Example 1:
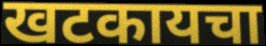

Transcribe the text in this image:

खटकायचा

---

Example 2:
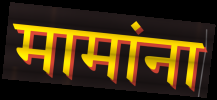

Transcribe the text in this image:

मामांना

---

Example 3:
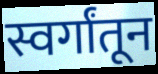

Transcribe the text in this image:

स्वर्गांतून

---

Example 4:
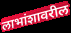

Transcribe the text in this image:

लाभांशावरील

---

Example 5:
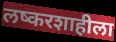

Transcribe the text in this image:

लष्करशाहीला